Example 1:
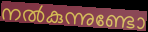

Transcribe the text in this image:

നൽകുന്നുണ്ടോ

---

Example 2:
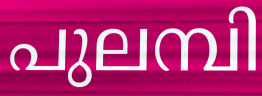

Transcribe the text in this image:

പുലമ്പി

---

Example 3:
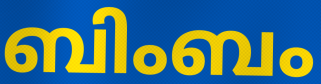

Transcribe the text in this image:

ബിംബം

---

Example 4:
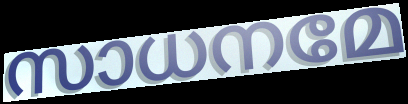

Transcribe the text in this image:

സാധനമേ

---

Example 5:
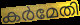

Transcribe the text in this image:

കർമേതി